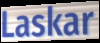
Laskar